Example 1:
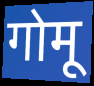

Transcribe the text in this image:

गोमू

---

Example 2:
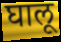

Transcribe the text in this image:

घालू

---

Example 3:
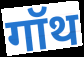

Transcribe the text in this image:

गॉथ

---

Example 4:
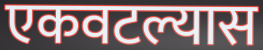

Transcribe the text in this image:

एकवटल्यास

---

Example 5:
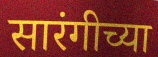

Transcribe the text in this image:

सारंगीच्या